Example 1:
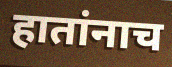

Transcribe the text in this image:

हातांनाच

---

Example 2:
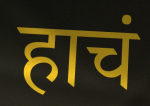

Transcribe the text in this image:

हाचं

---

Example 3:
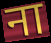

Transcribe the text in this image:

ना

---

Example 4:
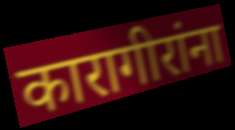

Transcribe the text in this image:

कारागीरांना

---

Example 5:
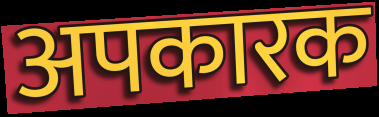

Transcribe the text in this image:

अपकारक